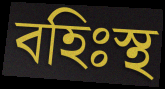
বহিঃস্থ